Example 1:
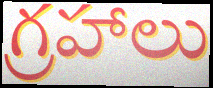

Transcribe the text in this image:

గ్రహాలు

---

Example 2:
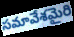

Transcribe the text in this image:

సమావేశమైరి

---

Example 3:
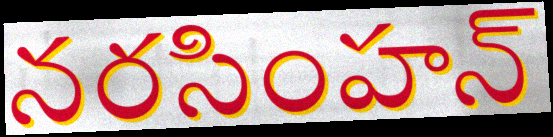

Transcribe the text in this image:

నరసింహన్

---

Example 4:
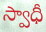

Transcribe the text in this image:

స్వాధీ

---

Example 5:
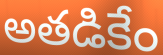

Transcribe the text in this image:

అతడికేం